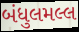
બંધુલમલ્લ